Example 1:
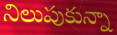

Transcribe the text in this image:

నిలుపుకున్నా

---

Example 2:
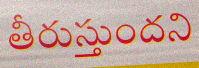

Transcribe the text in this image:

తీరుస్తుందని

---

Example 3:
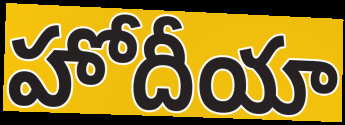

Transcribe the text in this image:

హోదీయా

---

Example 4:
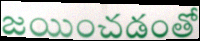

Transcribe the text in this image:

జయించడంతో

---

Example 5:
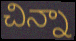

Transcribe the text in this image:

చిన్నా